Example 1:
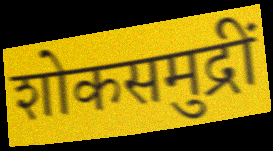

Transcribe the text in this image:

शोकसमुद्रीं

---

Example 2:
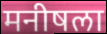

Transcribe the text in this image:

मनीषला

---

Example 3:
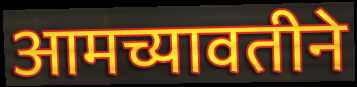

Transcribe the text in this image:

आमच्यावतीने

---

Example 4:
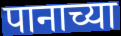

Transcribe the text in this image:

पानाच्या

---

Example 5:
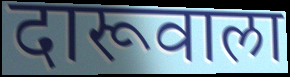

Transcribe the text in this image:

दारूवाला